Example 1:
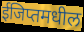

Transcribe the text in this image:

ईजिप्तमधील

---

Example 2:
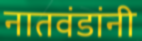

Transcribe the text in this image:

नातवंडांनी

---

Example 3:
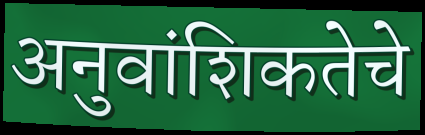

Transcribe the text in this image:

अनुवांशिकतेचे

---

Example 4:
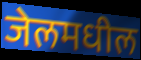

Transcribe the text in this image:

जेलमधील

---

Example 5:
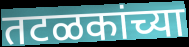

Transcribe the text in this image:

तटळकांच्या